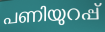
പണിയുറപ്പ്